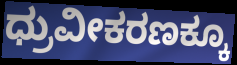
ಧ್ರುವೀಕರಣಕ್ಕೂ